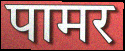
पामर